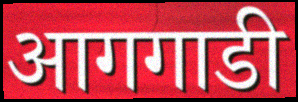
आगगाडी